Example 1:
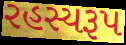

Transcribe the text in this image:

રહસ્યરૂપ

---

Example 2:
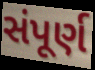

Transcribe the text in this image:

સંપૂર્ણ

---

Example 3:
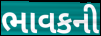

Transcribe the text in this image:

ભાવકની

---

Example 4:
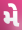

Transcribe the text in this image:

મે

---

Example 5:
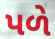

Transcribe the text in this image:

પળે